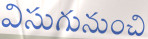
విసుగునుంచి